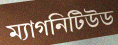
ম্যাগনিটিউড